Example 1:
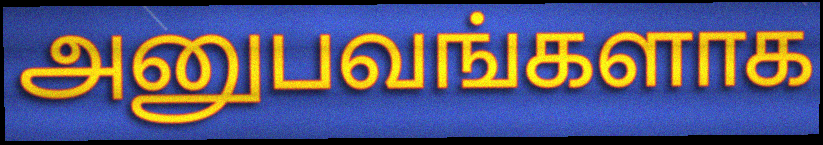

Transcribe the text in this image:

அனுபவங்களாக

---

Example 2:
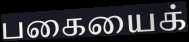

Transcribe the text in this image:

பகையைக்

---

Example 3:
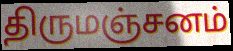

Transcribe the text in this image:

திருமஞ்சனம்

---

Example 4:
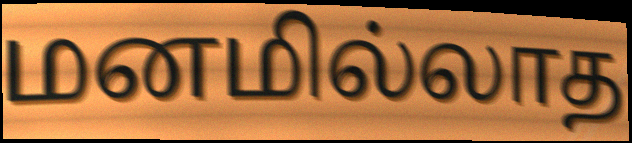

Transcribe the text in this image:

மனமில்லாத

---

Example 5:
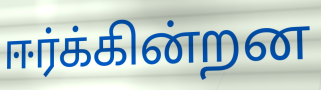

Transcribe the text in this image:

ஈர்க்கின்றன